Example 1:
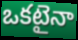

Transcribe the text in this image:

ఒకటైనా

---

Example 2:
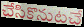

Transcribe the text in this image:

చేసికొనుటచే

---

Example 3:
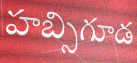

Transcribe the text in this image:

హబ్సిగూడ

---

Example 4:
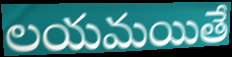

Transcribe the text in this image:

లయమయితే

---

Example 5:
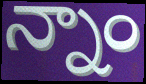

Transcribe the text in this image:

న్నాం